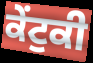
ਕੇਂਟੁਕੀ